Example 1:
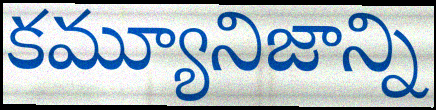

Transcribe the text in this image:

కమ్యూనిజాన్ని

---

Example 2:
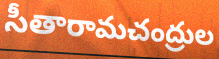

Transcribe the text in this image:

సీతారామచంద్రుల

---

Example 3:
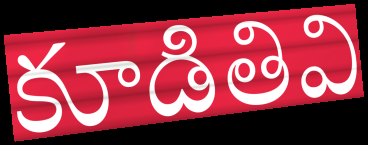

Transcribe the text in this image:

కూడితివి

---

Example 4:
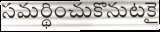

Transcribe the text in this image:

సమర్థించుకొనుటకై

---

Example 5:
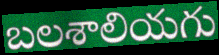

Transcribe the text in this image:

బలశాలియగు